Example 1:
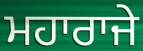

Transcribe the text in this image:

ਮਹਾਰਾਜੇ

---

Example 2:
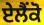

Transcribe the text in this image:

ਏਲੈਂਕੋ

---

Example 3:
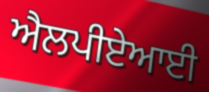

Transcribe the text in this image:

ਐਲਪੀਏਆਈ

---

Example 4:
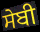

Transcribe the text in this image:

ਸੇਬੀ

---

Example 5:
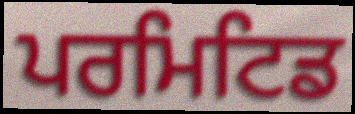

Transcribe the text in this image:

ਪਰਮਿਟਿਡ